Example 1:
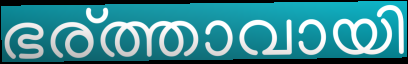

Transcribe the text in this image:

ഭര്ത്താവായി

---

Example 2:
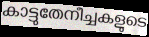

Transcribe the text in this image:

കാട്ടുതേനീച്ചകളുടെ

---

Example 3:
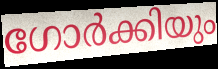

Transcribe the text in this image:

ഗോർക്കിയും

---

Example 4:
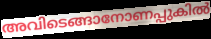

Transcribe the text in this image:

അവിടെങ്ങാനോണപ്പുകിൽ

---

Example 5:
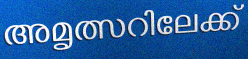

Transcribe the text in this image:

അമൃത്സറിലേക്ക്